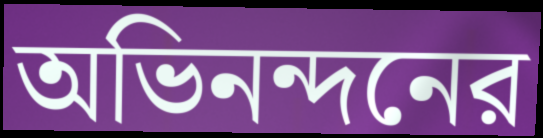
অভিনন্দনের